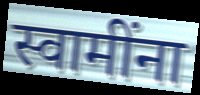
स्वामींना